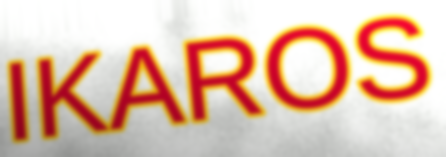
IKAROS